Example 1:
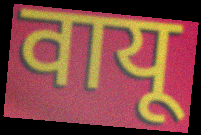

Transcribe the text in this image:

वायू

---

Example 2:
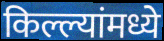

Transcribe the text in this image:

किल्ल्यांमध्ये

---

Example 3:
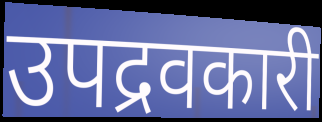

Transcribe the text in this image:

उपद्रवकारी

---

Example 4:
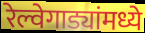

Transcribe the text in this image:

रेल्वेगाड्यांमध्ये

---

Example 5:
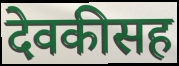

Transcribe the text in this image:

देवकीसह